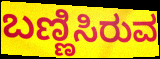
ಬಣ್ಣಿಸಿರುವ